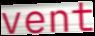
vent